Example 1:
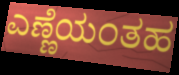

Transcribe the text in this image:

ಎಣ್ಣೆಯಂತಹ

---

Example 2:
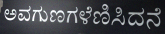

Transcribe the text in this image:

ಅವಗುಣಗಳೆಣಿಸಿದನೆ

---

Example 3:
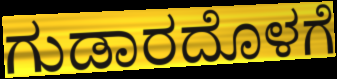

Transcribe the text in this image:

ಗುಡಾರದೊಳಗೆ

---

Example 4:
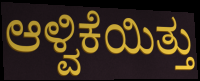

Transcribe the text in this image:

ಆಳ್ವಿಕೆಯಿತ್ತು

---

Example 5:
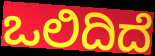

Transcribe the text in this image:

ಒಲಿದಿದೆ